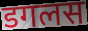
डगलस